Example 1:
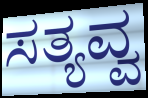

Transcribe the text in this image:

ಸತ್ಯವ್ವ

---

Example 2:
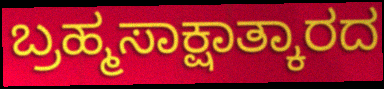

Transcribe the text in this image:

ಬ್ರಹ್ಮಸಾಕ್ಷಾತ್ಕಾರದ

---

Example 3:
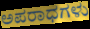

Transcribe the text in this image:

ಅಪರಾಧಗಳು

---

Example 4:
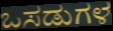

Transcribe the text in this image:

ಒಸಡುಗಳ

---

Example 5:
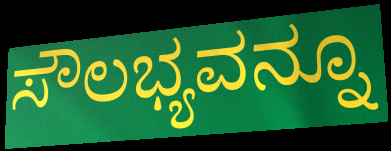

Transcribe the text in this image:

ಸೌಲಭ್ಯವನ್ನೂ